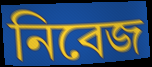
নিবেজ